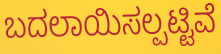
ಬದಲಾಯಿಸಲ್ಪಟ್ಟಿವೆ